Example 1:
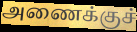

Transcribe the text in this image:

அணைக்குச்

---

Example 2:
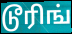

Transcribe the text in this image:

டூரிங்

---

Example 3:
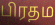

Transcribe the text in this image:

பிரதம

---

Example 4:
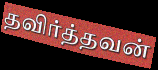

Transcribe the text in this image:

தவிர்த்தவன்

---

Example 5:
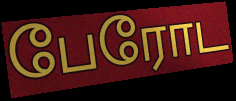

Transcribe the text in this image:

பேரோட